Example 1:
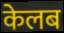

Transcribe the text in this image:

केलब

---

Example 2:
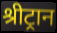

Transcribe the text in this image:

श्रीट्रान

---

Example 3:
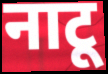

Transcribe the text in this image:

नाटू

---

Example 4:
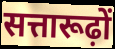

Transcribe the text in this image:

सत्तारूढ़ों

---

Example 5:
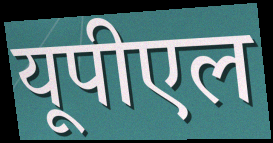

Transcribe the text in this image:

यूपीएल